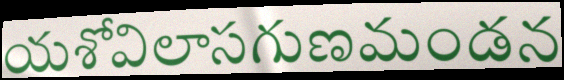
యశోవిలాసగుణమండన